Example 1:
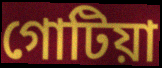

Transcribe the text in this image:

গোটিয়া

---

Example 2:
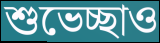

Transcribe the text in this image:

শুভেচ্ছাও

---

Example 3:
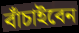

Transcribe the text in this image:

বাঁচাইবেন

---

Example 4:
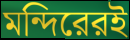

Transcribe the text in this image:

মন্দিরেরই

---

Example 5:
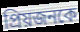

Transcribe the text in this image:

প্রিয়জনকে